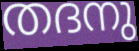
തദനു